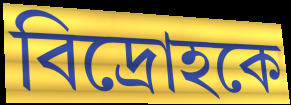
বিদ্রোহকে